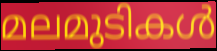
മലമുടികൾ